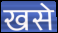
खसे